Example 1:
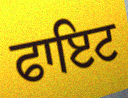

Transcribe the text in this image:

ਫਾਇਟ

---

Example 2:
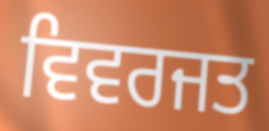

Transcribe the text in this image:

ਵਿਵਰਜਤ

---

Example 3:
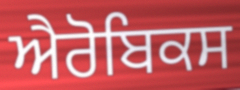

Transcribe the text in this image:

ਐਰੋਬਿਕਸ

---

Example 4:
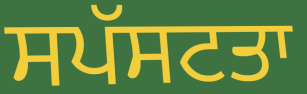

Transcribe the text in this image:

ਸਪੱਸਟਤਾ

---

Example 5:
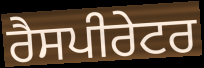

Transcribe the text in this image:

ਰੈਸਪੀਰੇਟਰ